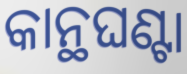
କାନ୍ଥଘଣ୍ଟା